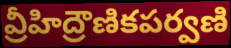
వ్రీహిద్రౌణికపర్వణి